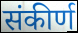
संकीर्ण